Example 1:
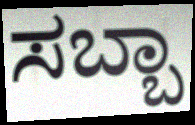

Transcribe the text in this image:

ಸಬ್ಬಾ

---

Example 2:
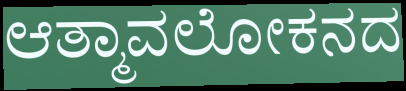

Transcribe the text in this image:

ಆತ್ಮಾವಲೋಕನದ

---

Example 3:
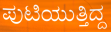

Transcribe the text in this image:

ಪುಟಿಯುತ್ತಿದ್ದ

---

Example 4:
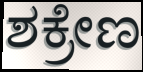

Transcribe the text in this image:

ಶಕ್ರೇಣ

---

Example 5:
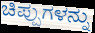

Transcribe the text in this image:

ಚಿಪ್ಪುಗಳನ್ನು